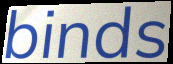
binds